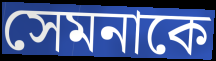
সেমনাকে